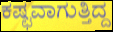
ಕಷ್ಟವಾಗುತ್ತಿದ್ದ